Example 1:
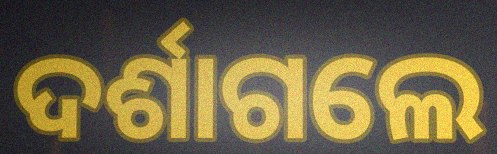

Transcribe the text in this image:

ଦର୍ଶାଗଲେ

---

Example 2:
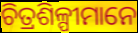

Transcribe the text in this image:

ଚିତ୍ରଶିଳ୍ପୀମାନେ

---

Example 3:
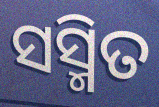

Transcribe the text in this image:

ସସ୍ମିତ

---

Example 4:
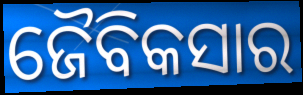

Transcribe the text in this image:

ଜୈବିକସାର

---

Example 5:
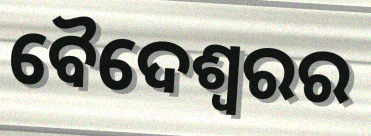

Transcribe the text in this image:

ବୈଦେଶ୍ୱରର